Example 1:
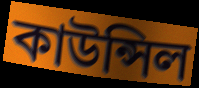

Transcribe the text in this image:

কাউন্সিল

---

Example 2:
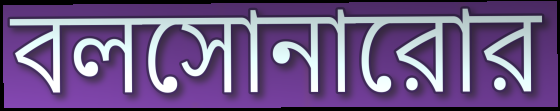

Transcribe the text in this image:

বলসোনারোর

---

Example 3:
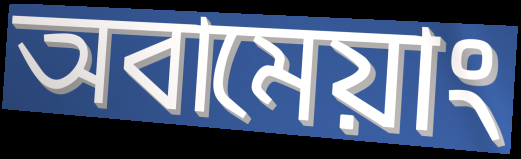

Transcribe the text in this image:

অবামেয়াং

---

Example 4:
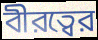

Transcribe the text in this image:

বীরত্বের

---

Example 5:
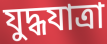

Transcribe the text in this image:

যুদ্ধযাত্রা